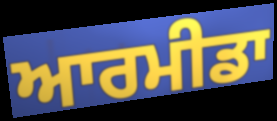
ਆਰਮੀਡਾ